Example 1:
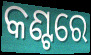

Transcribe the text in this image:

କଣ୍ଟରେ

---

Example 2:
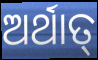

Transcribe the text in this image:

ଅର୍ଥାତ୍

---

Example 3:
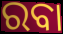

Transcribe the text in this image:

ରବା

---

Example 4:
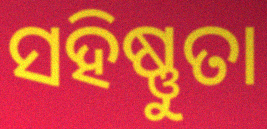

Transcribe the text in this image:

ସହିଷ୍ଣୁତା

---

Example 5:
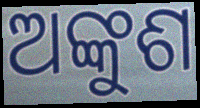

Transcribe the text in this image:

ଅଙ୍କୁଶ